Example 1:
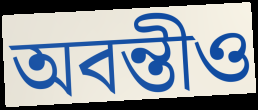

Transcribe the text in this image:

অবন্তীও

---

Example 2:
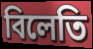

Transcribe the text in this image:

বিলেতি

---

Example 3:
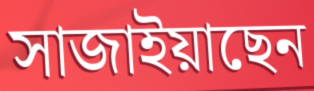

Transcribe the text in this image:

সাজাইয়াছেন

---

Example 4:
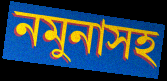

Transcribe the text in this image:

নমুনাসহ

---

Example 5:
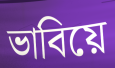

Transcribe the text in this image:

ভাবিয়ে